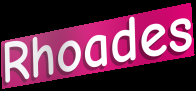
Rhoades